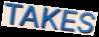
TAKES